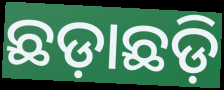
ଛଡ଼ାଛଡ଼ି